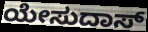
ಯೇಸುದಾಸ್